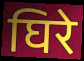
घिरे